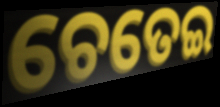
ଚେତେଇ